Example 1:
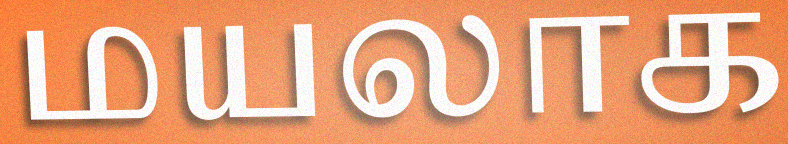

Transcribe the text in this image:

மயலாக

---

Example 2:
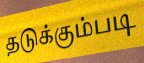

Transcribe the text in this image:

தடுக்கும்படி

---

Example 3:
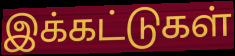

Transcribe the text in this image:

இக்கட்டுகள்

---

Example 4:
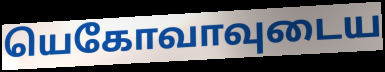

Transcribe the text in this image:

யெகோவாவுடைய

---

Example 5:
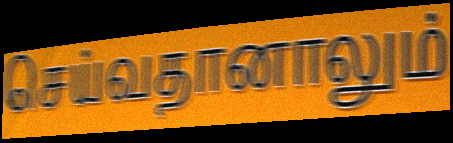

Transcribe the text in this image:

செய்வதானாலும்